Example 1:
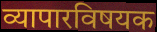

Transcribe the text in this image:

व्यापारविषयक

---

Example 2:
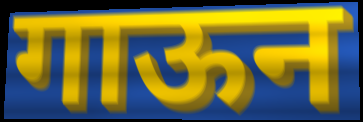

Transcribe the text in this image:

गाऊन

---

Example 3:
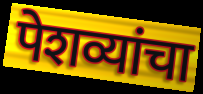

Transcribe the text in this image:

पेशव्यांचा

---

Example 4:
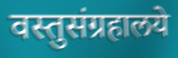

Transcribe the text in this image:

वस्तुसंग्रहालये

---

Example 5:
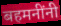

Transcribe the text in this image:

बहमनींनी